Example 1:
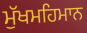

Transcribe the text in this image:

ਮੁੱਖਮਹਿਮਾਨ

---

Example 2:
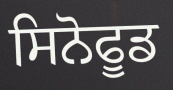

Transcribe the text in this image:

ਸਿਨੋਫੂਡ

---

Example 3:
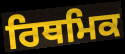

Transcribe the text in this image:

ਰਿਥਮਿਕ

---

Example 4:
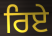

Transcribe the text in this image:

ਰਿਏ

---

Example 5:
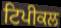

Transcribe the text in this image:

ਟਿਪੀਕਲ